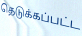
தெடுக்கப்பட்ட